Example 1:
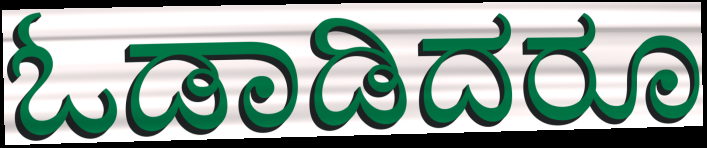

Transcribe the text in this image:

ಓಡಾಡಿದರೂ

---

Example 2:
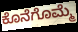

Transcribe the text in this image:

ಕೊನೆಗೊಮ್ಮೆ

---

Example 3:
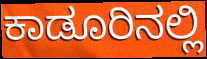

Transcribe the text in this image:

ಕಾಡೂರಿನಲ್ಲಿ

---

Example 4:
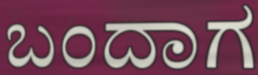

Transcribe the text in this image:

ಬಂದಾಗ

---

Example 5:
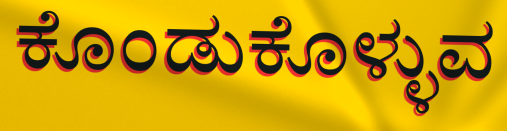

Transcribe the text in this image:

ಕೊಂಡುಕೊಳ್ಳುವ